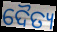
ଦୈତ୍ୟ